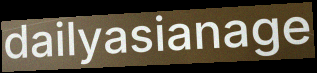
dailyasianage